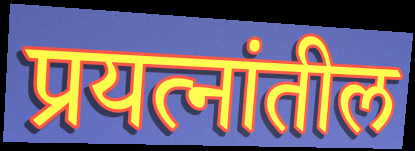
प्रयत्नांतील